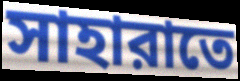
সাহারাতে